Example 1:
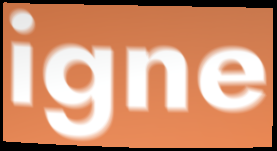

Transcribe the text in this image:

igne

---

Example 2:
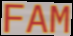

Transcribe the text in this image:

FAM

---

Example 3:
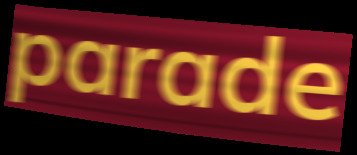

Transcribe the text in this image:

parade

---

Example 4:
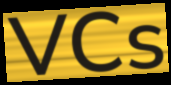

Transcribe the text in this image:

VCs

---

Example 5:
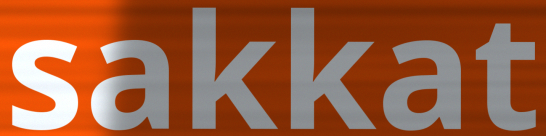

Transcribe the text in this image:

sakkat